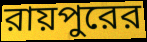
রায়পুরের